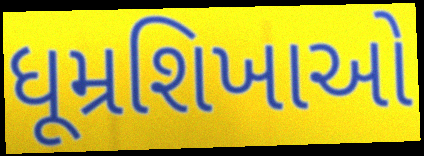
ધૂમ્રશિખાઓ